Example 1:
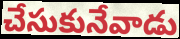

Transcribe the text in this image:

చేసుకునేవాడు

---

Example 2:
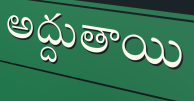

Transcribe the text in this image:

అద్దుతాయి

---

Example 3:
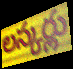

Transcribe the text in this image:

లస్కర్లు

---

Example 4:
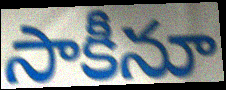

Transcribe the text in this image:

సాకీనూ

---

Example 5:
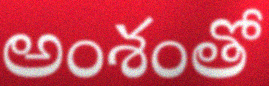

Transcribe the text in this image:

అంశంతో